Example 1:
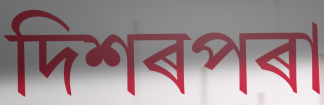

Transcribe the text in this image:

দিশৰপৰা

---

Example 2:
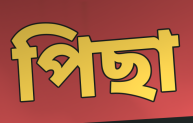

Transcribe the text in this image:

পিছা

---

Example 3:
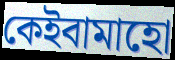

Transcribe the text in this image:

কেইবামাহো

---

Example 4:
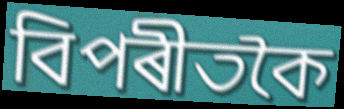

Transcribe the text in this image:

বিপৰীতকৈ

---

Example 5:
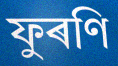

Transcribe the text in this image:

ফুৰণি